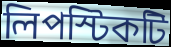
লিপস্টিকটি